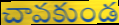
చావకుండ